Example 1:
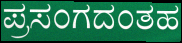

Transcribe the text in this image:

ಪ್ರಸಂಗದಂತಹ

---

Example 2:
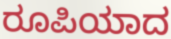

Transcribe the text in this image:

ರೂಪಿಯಾದ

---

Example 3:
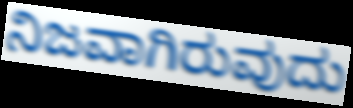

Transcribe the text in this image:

ನಿಜವಾಗಿರುವುದು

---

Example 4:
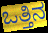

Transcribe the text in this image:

ಒತ್ತಿನ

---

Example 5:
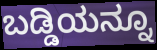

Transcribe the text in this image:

ಬಡ್ಡಿಯನ್ನೂ